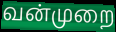
வன்முறை